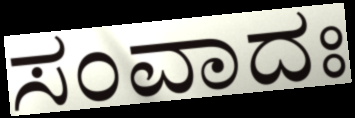
ಸಂವಾದಃ